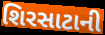
શિરસાટાની